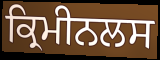
ਕ੍ਰਿਮੀਨਲਸ